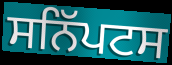
ਸਨਿੱਪਟਸ